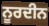
ਨੂਰਦੀਨ